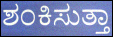
ಶಂಕಿಸುತ್ತಾ